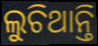
ଲୁଚିଥାନ୍ତି